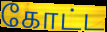
கோட்ட